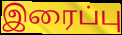
இரைப்பு